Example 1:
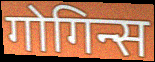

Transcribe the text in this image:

गोगिन्स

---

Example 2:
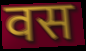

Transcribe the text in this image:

वस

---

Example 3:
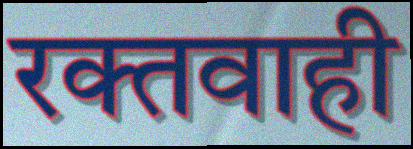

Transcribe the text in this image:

रक्तवाही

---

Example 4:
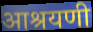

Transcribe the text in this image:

आश्रयणी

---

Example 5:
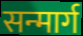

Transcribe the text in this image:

सन्‍मार्ग